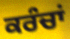
ਕਰੰਚਾਂ